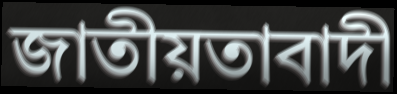
জাতীয়তাবাদী